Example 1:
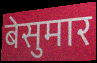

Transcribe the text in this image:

बेसुमार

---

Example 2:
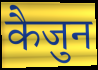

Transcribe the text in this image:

कैजुन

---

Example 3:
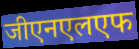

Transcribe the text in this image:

जीएनएलएफ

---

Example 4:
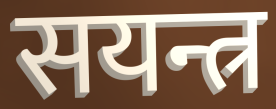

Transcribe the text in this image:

सयन्त्र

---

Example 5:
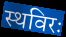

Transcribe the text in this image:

स्थविरः